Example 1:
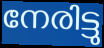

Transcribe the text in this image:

നേരിട്ടു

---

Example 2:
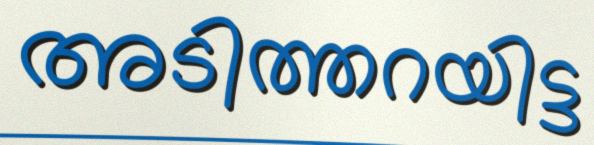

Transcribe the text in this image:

അടിത്തറയിട്ട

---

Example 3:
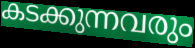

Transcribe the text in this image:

കടക്കുന്നവരും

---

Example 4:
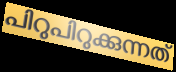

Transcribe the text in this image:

പിറുപിറുക്കുന്നത്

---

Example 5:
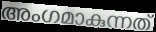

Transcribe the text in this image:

അംഗമാകുന്നത്